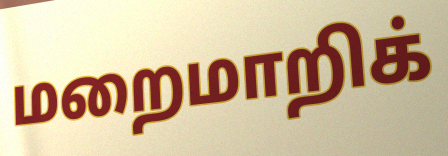
மறைமாறிக்